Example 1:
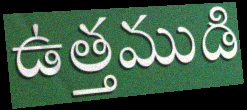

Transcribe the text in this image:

ఉత్తముడి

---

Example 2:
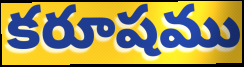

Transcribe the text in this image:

కరూషము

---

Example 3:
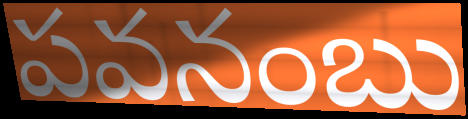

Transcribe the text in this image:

పవనంబు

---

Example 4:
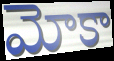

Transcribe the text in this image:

మోకా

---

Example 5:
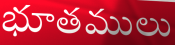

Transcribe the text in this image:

భూతములు